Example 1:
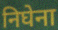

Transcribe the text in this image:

निघेना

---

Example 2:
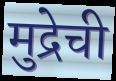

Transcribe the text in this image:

मुद्रेची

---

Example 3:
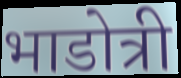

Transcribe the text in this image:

भाडोत्री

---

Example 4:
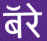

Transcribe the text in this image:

बॅरे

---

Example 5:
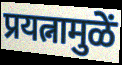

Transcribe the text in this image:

प्रयत्नामुळें